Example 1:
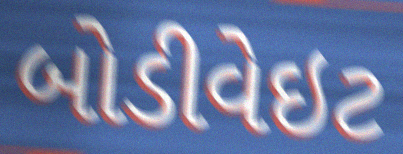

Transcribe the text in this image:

બોડીવેઇટ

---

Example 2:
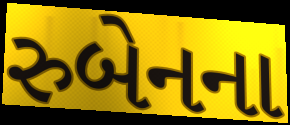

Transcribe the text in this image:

રુબેનના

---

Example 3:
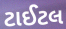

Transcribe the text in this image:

ટાઈટલ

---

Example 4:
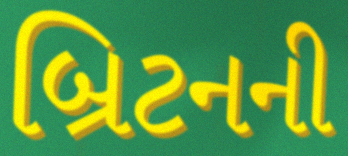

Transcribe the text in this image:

બ્રિટનની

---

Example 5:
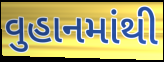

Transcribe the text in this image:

વુહાનમાંથી